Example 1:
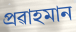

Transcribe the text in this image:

প্ৰৱাহমান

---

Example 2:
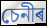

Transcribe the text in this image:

চেনীৰ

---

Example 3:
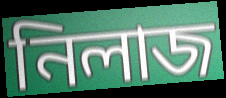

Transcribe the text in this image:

নিলাজ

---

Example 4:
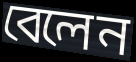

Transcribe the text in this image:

বেলেন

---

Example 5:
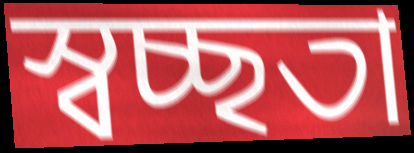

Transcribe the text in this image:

স্বচ্ছতা